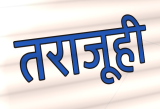
तराजूही